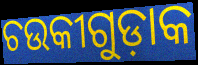
ଚଉକୀଗୁଡ଼ାକ